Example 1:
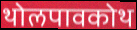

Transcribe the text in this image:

थोलपावकोथ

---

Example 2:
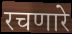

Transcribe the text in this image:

रचणारे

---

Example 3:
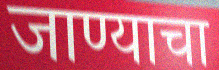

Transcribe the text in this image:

जाण्‍याचा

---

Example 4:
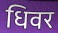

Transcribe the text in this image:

धिवर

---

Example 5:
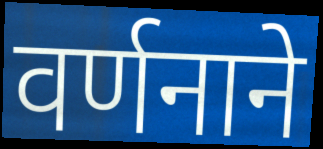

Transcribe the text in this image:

वर्णनाने